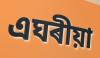
এঘৰীয়া